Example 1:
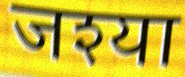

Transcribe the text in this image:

जश्या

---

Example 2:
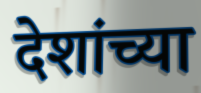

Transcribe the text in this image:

देशांच्या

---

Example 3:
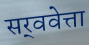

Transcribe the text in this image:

सर्ववेत्ता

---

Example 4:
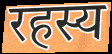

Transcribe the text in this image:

रहस्य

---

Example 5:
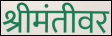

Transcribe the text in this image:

श्रीमंतीवर